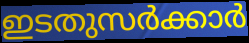
ഇടതുസർക്കാർ